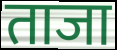
ताजा